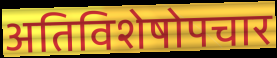
अतिविशेषोपचार